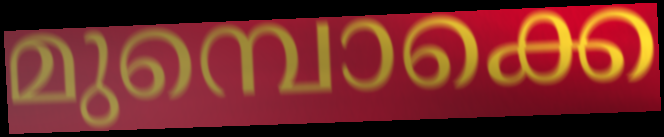
മുമ്പൊക്കെ